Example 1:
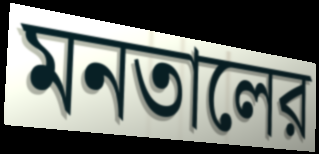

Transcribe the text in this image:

মনতালের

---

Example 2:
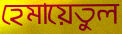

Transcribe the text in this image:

হেমায়েতুল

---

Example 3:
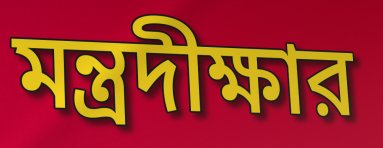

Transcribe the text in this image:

মন্ত্রদীক্ষার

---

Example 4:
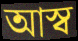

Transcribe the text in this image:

আস্ব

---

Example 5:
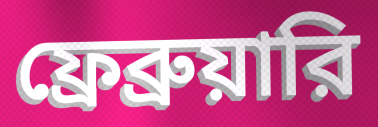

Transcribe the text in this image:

ফ্রেব্রুয়ারি